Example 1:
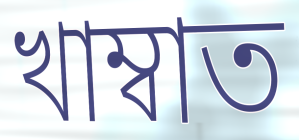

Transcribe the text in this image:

খাম্বাত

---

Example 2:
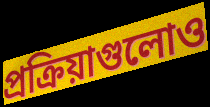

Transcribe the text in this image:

প্রক্রিয়াগুলোও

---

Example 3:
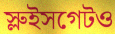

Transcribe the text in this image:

স্লুইসগেটও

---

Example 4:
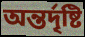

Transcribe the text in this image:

অন্তর্দৃষ্টি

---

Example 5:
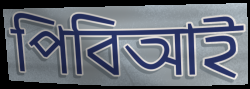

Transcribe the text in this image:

পিবিআই